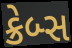
ક્રેબ્સ